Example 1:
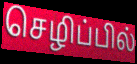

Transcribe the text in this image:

செழிப்பில்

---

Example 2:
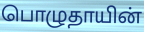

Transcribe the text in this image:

பொழுதாயின்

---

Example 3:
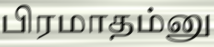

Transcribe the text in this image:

பிரமாதம்னு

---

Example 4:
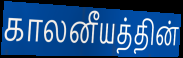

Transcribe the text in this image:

காலனீயத்தின்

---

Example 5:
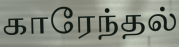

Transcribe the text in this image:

காரேந்தல்